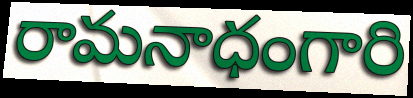
రామనాధంగారి